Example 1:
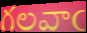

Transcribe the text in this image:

గలవాఁ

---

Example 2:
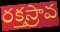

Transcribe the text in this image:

రక్తస్రావ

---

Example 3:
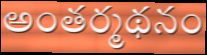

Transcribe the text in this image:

అంతర్మథనం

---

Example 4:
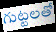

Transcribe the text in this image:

గుట్టలతో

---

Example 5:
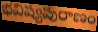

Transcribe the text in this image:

భవిష్యపురాణం